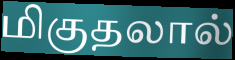
மிகுதலால்